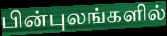
பின்புலங்களில்